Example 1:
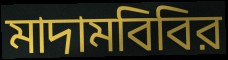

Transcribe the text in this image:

মাদামবিবির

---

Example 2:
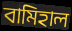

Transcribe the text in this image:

বামিহাল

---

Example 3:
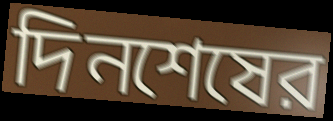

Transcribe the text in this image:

দিনশেষের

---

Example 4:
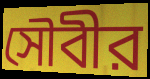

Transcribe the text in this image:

সৌবীর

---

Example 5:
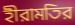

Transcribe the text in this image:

হীরামতির